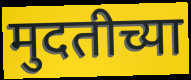
मुदतीच्या